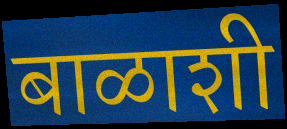
बाळाशी